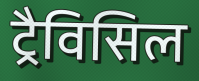
ट्रैविसिल